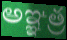
అఞ్ఞత్ర